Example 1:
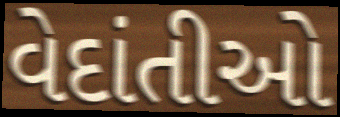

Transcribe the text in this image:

વેદાંતીઓ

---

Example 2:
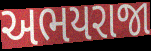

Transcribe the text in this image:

અભયરાજા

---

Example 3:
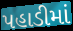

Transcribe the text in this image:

પહાડીમાં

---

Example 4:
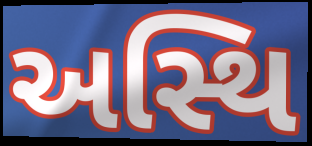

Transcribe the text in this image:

અસ્થિ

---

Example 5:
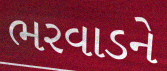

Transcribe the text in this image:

ભરવાડને